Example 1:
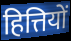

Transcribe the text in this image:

हित्तियों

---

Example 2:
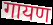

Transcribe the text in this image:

गायण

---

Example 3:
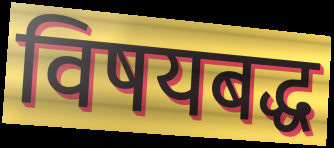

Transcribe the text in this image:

विषयबद्ध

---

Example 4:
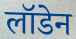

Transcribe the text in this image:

लॉडेन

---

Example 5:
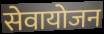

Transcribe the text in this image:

सेवायोजन